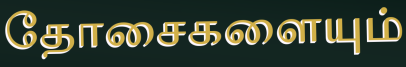
தோசைகளையும்